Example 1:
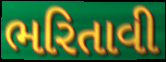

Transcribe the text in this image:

ભરિતાવી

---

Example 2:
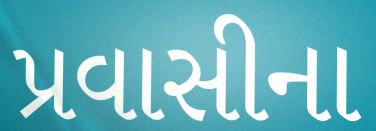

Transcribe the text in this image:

પ્રવાસીના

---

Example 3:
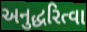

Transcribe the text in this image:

અનુદ્ધરિત્વા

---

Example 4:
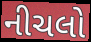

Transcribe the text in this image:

નીચલો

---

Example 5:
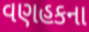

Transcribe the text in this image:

વણહકના